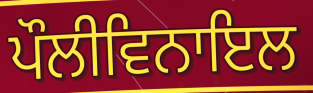
ਪੌਲੀਵਿਨਾਇਲ